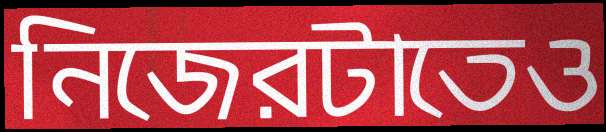
নিজেরটাতেও